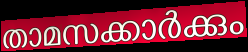
താമസക്കാർക്കും